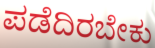
ಪಡೆದಿರಬೇಕು